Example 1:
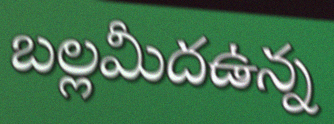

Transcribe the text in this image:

బల్లమీదఉన్న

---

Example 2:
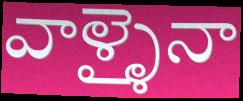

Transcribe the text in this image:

వాళ్ళైనా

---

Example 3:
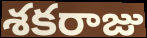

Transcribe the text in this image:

శకరాజు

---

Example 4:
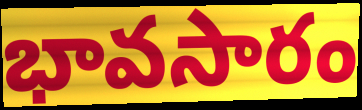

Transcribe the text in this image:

భావసారం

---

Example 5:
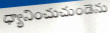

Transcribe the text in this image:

ధ్యానించుచుండెను